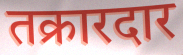
तक्रारदार